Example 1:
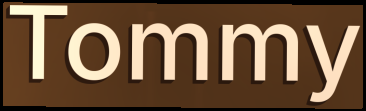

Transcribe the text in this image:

Tommy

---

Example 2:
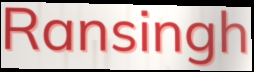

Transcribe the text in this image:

Ransingh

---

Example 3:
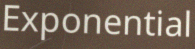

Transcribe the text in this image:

Exponential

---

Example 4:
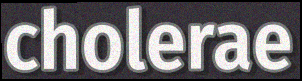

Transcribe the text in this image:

cholerae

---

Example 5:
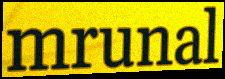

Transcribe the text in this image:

mrunal